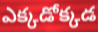
ఎక్కడోక్కడ